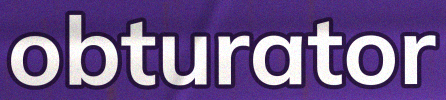
obturator